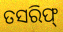
ତସରିଫ୍